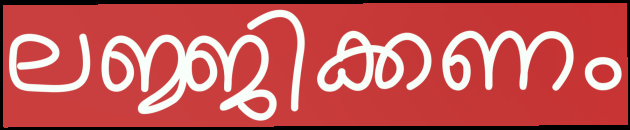
ലജ്ജിക്കണം